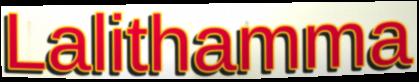
Lalithamma